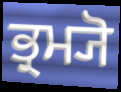
ਭ੍ਰਮ੍ਯੋ